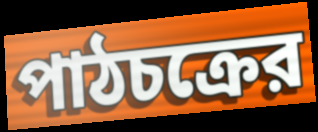
পাঠচক্রের